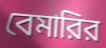
বেমারির